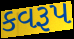
કવરૂપ